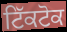
ਟਿੱਕਟੋਕ